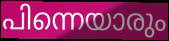
പിന്നെയാരും